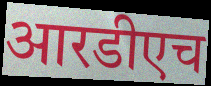
आरडीएच